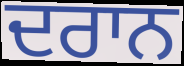
ਦਰਾਨ